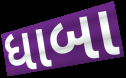
ધાબા